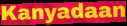
Kanyadaan